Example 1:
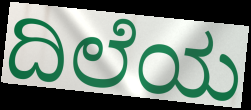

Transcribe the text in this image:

ದಿಲೆಯ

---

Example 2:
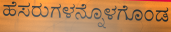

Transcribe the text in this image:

ಹೆಸರುಗಳನ್ನೊಳಗೊಂಡ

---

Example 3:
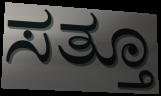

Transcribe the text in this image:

ಸತ್ತೂ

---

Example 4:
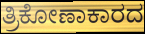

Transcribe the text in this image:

ತ್ರಿಕೋಣಾಕಾರದ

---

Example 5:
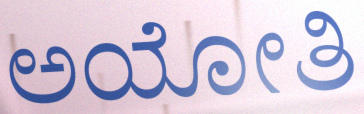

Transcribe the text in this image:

ಅಯೋತಿ